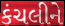
કંચલીને